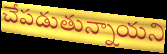
చేపడుతున్నాయని